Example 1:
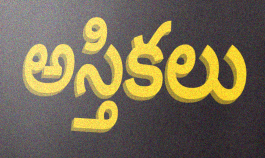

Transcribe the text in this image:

అస్తికలు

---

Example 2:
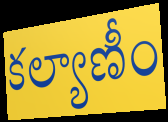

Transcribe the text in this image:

కల్యాణీం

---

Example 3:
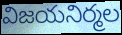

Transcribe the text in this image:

విజయనిర్మల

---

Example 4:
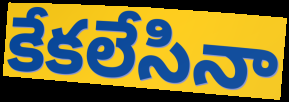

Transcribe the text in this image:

కేకలేసినా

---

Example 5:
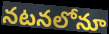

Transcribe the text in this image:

నటనలోనూ